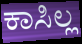
ಕಾಸಿಲ್ಲ